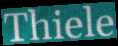
Thiele